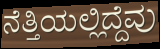
ನೆತ್ತಿಯಲ್ಲಿದ್ದೆವು